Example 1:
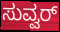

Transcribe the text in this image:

ಸುವ್ವರ್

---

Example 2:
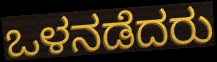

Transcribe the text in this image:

ಒಳನಡೆದರು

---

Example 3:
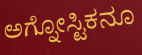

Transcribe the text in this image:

ಅಗ್ನೋಸ್ಟಿಕನೂ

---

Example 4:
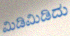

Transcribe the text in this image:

ಮಿಡಿಮಿಡಿದು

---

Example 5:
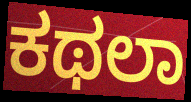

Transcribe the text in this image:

ಕಥಲಾ